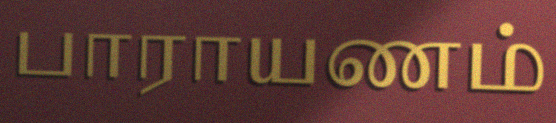
பாராயணம்